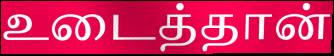
உடைத்தான்